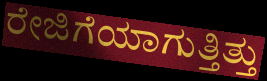
ರೇಜಿಗೆಯಾಗುತ್ತಿತ್ತು